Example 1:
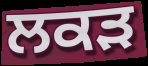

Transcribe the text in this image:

ਲਕੜ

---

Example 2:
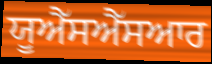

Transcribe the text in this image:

ਯੂਐੱਸਐੱਸਆਰ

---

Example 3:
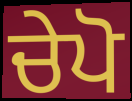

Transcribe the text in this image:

ਚੇਪੋ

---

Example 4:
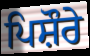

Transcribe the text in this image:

ਪਿਸ਼ੌਰੇ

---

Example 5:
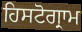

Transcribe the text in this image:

ਹਿਸਟੋਗ੍ਰਾਮ